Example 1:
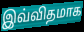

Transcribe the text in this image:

இவ்விதமாக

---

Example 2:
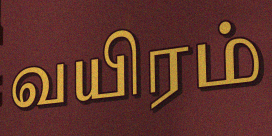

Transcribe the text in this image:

வயிரம்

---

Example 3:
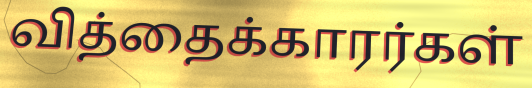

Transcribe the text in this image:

வித்தைக்காரர்கள்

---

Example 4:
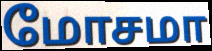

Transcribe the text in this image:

மோசமா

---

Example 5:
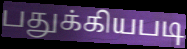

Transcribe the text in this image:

பதுக்கியபடி